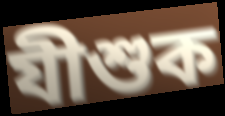
যীশুক